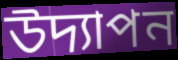
উদ্যাপন